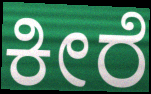
ಕೀರೆ